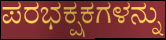
ಪರಭಕ್ಷಕಗಳನ್ನು